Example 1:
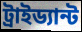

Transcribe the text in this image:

ট্রাইড্যান্ট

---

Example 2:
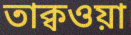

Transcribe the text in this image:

তাক্বওয়া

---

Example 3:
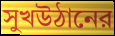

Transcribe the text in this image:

সুখউঠানের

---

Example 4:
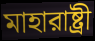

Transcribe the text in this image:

মাহারাষ্ট্রী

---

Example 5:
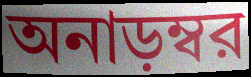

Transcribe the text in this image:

অনাড়ম্বর